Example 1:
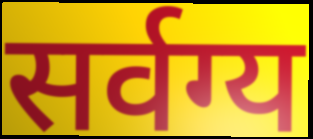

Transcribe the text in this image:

सर्वग्य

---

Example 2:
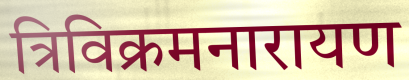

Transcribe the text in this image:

त्रिविक्रमनारायण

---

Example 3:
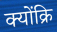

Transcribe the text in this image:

क्योंक्रि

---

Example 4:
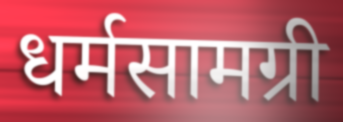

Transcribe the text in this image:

धर्मसामग्री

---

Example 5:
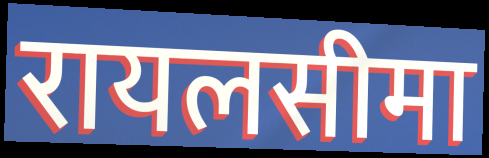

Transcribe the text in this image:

रायलसीमा